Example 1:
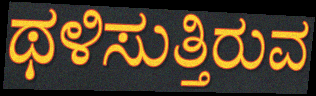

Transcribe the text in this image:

ಥಳಿಸುತ್ತಿರುವ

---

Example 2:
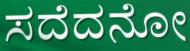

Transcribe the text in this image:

ಸದೆದನೋ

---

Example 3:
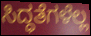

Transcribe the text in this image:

ಸಿದ್ಧತೆಗಳೆಲ್ಲ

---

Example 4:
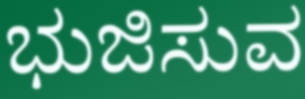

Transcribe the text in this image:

ಭುಜಿಸುವ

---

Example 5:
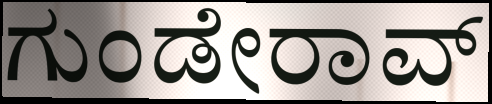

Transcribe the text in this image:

ಗುಂಡೇರಾವ್